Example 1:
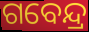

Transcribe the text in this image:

ଗବେନ୍ଦ୍ର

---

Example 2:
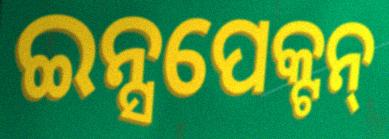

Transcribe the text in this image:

ଇନ୍ସପେକ୍ଟନ୍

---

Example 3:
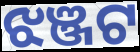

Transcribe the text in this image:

ଝଞ୍ଜଟ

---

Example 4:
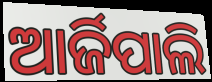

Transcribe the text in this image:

ଆର୍ଜିପାଲି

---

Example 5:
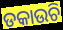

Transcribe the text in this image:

ଡକାଉଚି